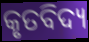
କୃତବିଦ୍ଯ